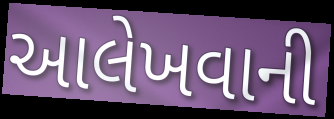
આલેખવાની